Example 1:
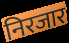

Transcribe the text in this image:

निरजार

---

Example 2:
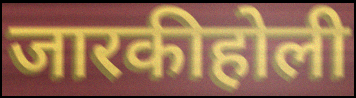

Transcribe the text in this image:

जारकीहोली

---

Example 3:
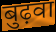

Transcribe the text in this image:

बुढ़वा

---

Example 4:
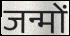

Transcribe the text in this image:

जन्मों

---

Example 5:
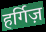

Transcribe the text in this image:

हर्गिज़